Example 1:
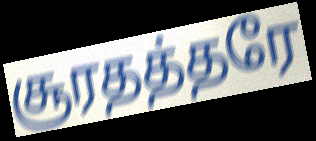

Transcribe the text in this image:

சூரதத்தரே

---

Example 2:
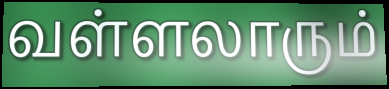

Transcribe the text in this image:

வள்ளலாரும்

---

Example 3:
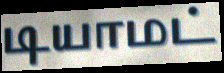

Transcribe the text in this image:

டியாமட்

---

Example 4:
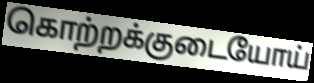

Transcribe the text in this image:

கொற்றக்குடையோய்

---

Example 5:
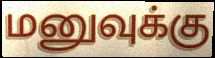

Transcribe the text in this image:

மனுவுக்கு